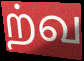
ற்வ